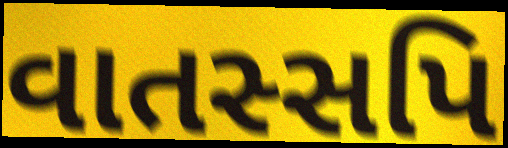
વાતસ્સપિ